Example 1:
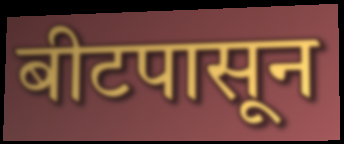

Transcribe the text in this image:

बीटपासून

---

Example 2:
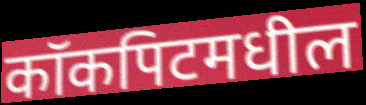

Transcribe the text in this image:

कॉकपिटमधील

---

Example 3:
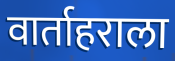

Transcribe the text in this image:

वार्ताहराला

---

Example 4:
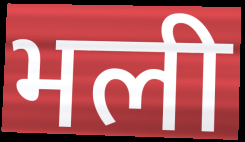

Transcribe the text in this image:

भली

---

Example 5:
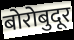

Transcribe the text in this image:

बोरोबुदूर